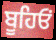
ਬੂਹਿਓਂ